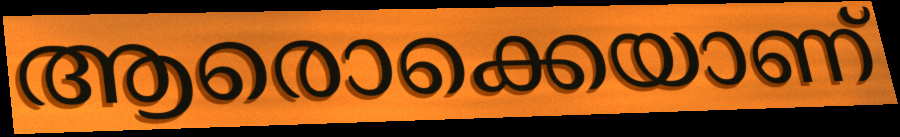
ആരൊക്കെയാണ്